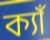
ক্যাঁ